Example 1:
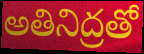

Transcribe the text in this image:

అతినిద్రతో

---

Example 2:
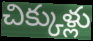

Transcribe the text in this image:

చిక్కుళ్లు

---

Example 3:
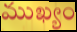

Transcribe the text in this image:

ముఖ్యం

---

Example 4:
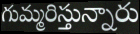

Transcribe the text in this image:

గుమ్మరిస్తున్నారు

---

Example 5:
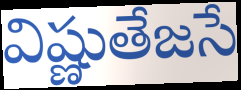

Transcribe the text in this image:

విష్ణుతేజసే